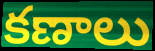
కణాలు